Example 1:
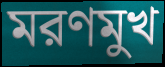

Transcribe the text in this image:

মরণমুখ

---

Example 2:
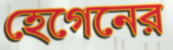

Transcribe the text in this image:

হেগেনের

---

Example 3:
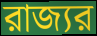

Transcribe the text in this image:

রাজ্যর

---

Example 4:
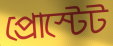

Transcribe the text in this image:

প্রোস্টেট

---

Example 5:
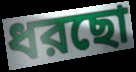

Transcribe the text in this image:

ধরছো